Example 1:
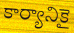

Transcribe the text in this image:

కార్యానికై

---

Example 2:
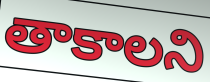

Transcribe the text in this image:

తాకాలని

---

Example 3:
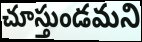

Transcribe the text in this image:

చూస్తుండమని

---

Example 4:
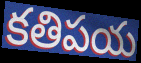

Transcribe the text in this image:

కతిపయ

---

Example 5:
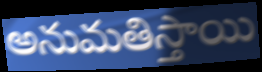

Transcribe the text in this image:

అనుమతిస్తాయి